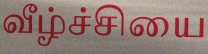
வீழ்ச்சியை